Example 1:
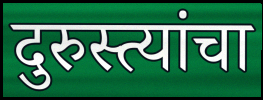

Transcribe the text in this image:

दुरुस्त्यांचा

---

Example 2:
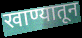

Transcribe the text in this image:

खाण्यातून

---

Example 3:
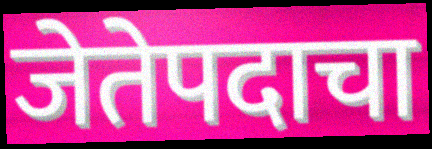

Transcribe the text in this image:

जेतेपदाचा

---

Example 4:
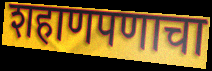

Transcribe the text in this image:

शहाणपणाचा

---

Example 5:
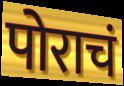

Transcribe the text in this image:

पोराचं